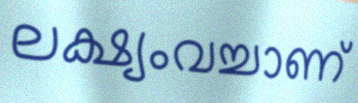
ലക്ഷ്യംവച്ചാണ്